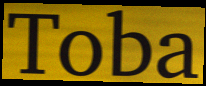
Toba